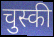
चुस्की